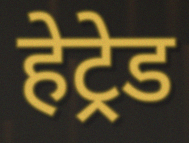
हेट्रेड